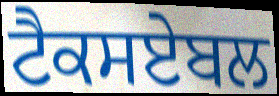
ਟੈਕਸਏਬਲ